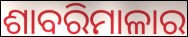
ଶାବରିମାଳାର